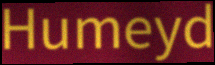
Humeyd